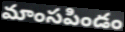
మాంసపిండం